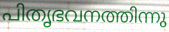
പിതൃഭവനത്തിന്നു